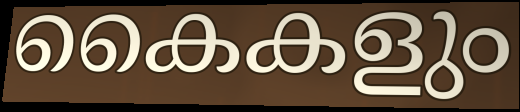
കൈകളും